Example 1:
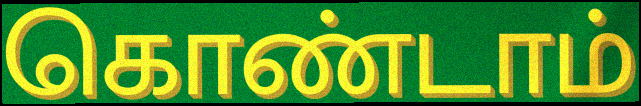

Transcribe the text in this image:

கொண்டாம்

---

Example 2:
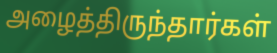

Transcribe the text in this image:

அழைத்திருந்தார்கள்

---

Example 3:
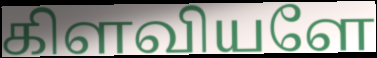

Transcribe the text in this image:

கிளவியளே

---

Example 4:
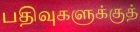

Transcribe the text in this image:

பதிவுகளுக்குத்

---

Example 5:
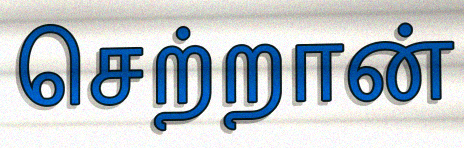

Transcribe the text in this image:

செற்றான்